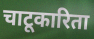
चाटूकारिता